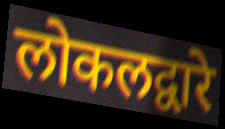
लोकलद्वारे